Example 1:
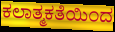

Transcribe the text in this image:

ಕಲಾತ್ಮಕತೆಯಿಂದ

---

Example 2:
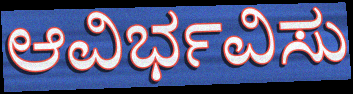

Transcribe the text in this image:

ಆವಿರ್ಭವಿಸು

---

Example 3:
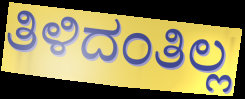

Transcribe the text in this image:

ತಿಳಿದಂತಿಲ್ಲ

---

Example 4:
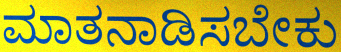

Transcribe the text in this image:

ಮಾತನಾಡಿಸಬೇಕು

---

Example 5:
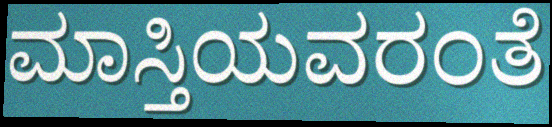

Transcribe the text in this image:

ಮಾಸ್ತಿಯವರಂತೆ